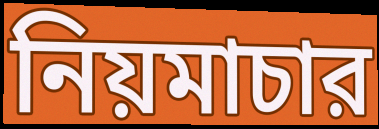
নিয়মাচার